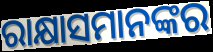
ରାକ୍ଷାସମାନଙ୍କର